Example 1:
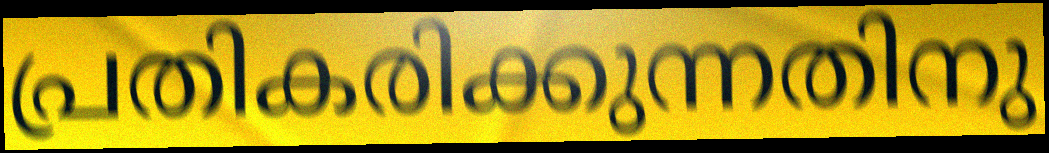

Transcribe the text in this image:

പ്രതികരിക്കുന്നതിനു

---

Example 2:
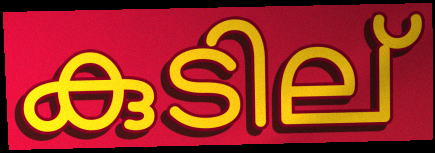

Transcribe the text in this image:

കുടില്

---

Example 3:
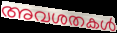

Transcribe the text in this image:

അവശതകൾ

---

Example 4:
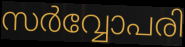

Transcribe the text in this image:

സർവ്വോപരി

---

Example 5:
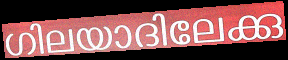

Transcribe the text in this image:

ഗിലയാദിലേക്കു